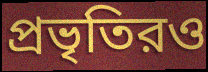
প্রভৃতিরও